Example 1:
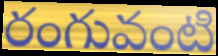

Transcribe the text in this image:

రంగువంటి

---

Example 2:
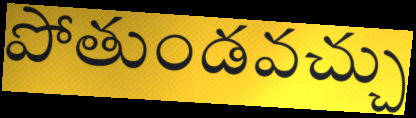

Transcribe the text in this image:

పోతుండవచ్చు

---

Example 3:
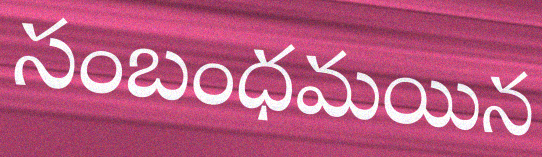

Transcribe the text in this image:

సంబంధమయిన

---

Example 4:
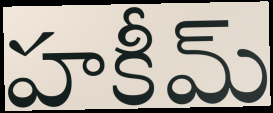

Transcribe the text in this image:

హకీమ్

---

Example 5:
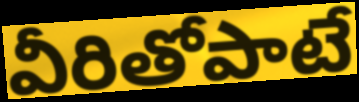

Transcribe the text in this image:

వీరితోపాటే